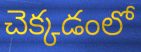
చెక్కడంలో